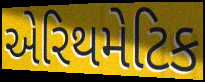
એરિથમેટિક